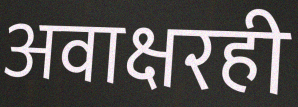
अवाक्षरही